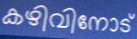
കഴിവിനോട്